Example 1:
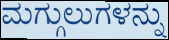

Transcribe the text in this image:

ಮಗ್ಗುಲುಗಳನ್ನು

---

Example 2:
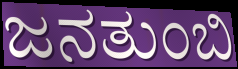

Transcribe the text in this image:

ಜನತುಂಬಿ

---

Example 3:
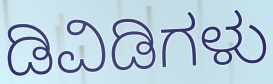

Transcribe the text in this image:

ಡಿವಿಡಿಗಳು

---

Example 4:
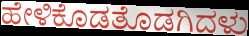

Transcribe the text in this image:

ಹೇಳಿಕೊಡತೊಡಗಿದಳು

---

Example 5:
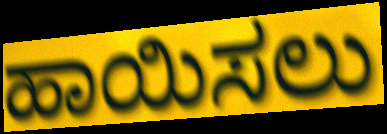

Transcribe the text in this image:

ಹಾಯಿಸಲು